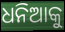
ଧନିଆକୁ